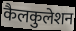
कैलकुलेशन